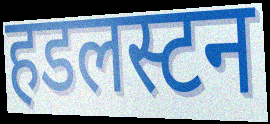
हडलस्टन